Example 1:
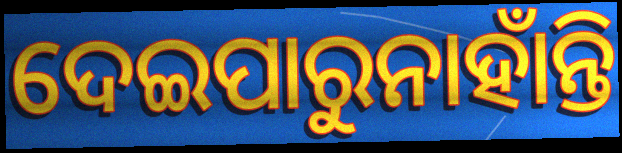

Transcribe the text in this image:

ଦେଇପାରୁନାହାଁନ୍ତି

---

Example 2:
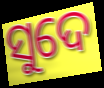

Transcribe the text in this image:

ସୁଦେ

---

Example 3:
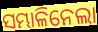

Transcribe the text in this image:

ସମ୍ଭାଳିନେଲା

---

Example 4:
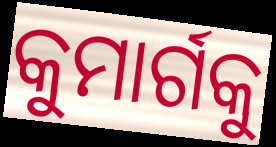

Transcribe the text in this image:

କୁମାର୍ଗକୁ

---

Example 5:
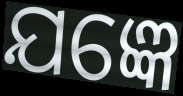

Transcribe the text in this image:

ଯଜ୍ଞେ